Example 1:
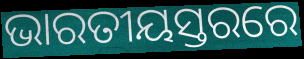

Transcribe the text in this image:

ଭାରତୀୟସ୍ତରରେ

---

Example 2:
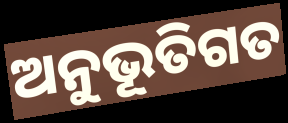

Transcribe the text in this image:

ଅନୁଭୂତିଗତ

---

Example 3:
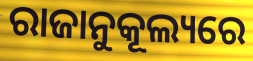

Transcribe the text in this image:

ରାଜାନୁକୂଲ୍ୟରେ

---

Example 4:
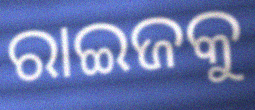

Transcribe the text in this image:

ରାଇଜକୁ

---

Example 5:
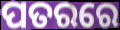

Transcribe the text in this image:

ପତରରେ